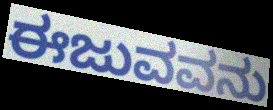
ಈಜುವವನು